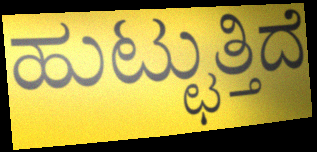
ಹುಟ್ಟುತ್ತಿದೆ